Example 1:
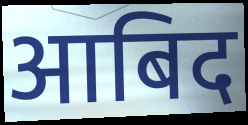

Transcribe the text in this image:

आबिद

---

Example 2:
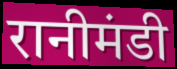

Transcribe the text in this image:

रानीमंडी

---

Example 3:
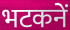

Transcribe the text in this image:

भटकनें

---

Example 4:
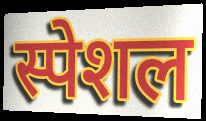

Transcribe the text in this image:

स्पेशल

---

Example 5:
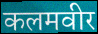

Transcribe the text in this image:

कलमवीर